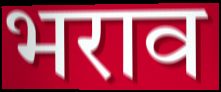
भराव